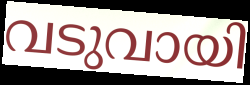
വടുവായി